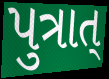
પુત્રાત્